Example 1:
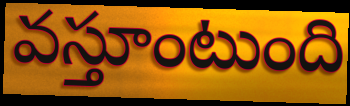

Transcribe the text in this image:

వస్తూంటుంది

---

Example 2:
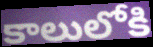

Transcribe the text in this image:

కాలులోకి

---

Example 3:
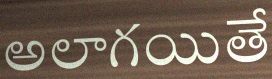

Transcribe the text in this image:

అలాగయితే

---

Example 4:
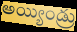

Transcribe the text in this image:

అయ్యిండ్రు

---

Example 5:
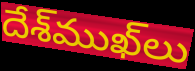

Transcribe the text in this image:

దేశ్‌ముఖ్‌లు